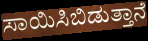
ಸಾಯಿಸಿಬಿಡುತ್ತಾನೆ